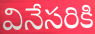
వినేసరికి